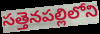
సత్తెనపల్లిలోని